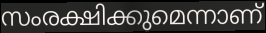
സംരക്ഷിക്കുമെന്നാണ്